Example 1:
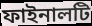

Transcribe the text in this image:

ফাইনালটি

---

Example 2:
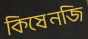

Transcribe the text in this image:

কিষেনজি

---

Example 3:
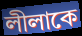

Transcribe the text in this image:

লীলাকে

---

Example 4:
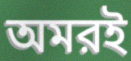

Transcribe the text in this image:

অমরই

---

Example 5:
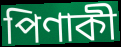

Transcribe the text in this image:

পিণাকী